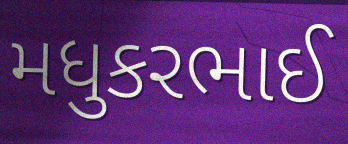
મધુકરભાઈ